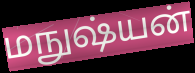
மநுஷ்யன்